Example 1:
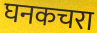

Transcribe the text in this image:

घनकचरा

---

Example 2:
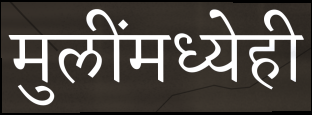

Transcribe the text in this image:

मुलींमध्येही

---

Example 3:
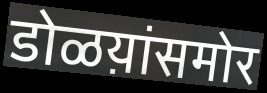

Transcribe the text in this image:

डोळय़ांसमोर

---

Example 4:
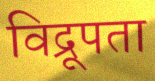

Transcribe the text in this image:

विद्रूपता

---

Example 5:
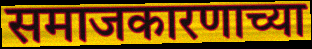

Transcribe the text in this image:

समाजकारणाच्या